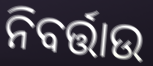
ନିବର୍ତ୍ତାଉ